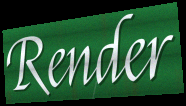
Render